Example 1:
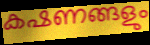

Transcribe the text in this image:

കഷണങ്ങളും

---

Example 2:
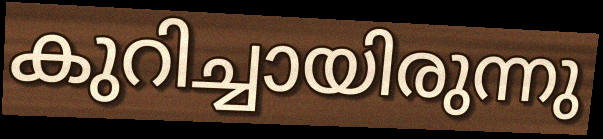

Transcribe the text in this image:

കുറിച്ചായിരുന്നു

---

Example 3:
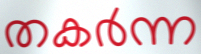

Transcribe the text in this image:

തകർന്ന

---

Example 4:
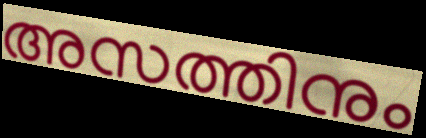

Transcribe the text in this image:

അസത്തിനും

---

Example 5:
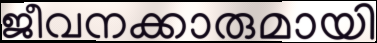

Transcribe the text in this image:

ജീവനക്കാരുമായി